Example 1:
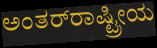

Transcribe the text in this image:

ಅಂತರ್‌ರಾಷ್ಟ್ರೀಯ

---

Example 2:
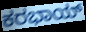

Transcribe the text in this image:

ಕರಭಾಯ್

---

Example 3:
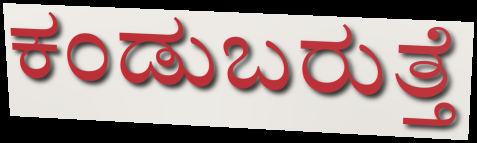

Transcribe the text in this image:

ಕಂಡುಬರುತ್ತೆ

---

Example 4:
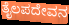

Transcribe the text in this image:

ತೈಲಪದೇವನ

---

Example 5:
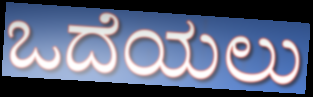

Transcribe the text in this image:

ಒದೆಯಲು